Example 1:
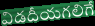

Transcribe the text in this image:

విడదీయగలిగే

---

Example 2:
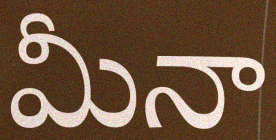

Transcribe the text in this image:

మీనా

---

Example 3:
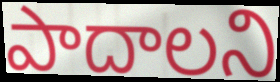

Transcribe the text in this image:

పాదాలని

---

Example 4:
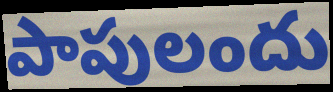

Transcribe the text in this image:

పాపులందు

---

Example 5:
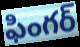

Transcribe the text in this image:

ఫింగర్